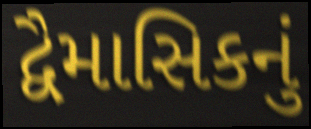
દ્વૈમાસિકનું